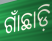
ଗାଁଛାଡ଼ି